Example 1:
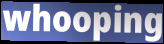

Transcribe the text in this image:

whooping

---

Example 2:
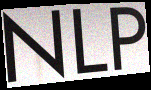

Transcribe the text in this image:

NLP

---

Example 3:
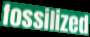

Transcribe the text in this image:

fossilized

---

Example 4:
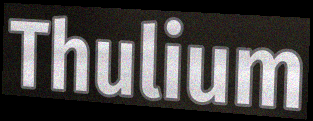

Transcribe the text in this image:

Thulium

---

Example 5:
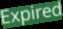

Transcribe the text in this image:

Expired